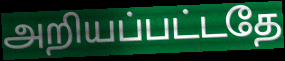
அறியப்பட்டதே